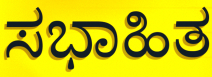
ಸಭಾಹಿತ